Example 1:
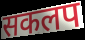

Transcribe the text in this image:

सकलप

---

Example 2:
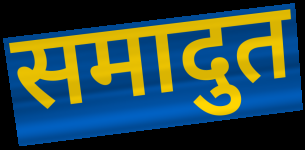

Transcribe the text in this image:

समादुत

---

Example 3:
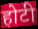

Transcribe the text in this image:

होटी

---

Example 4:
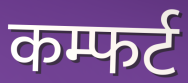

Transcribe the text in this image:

कम्फर्ट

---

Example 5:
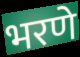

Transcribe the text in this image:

भरणे